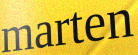
marten